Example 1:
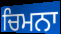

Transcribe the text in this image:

ਚਿਮਨਾ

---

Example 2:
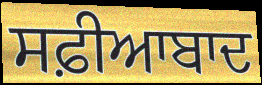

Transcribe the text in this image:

ਸਫ਼ੀਆਬਾਦ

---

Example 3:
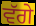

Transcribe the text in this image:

ਵੱਗੇ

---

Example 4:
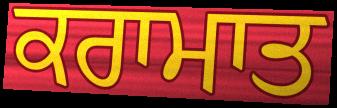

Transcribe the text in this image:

ਕਰਾਮਾਤ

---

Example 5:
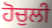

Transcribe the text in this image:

ਹੋਚੁਲੀ